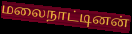
மலைநாட்டினன்